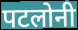
पटलोनी